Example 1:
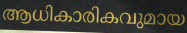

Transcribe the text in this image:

ആധികാരികവുമായ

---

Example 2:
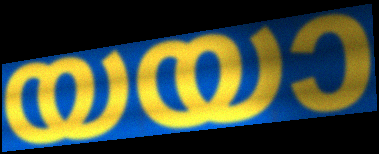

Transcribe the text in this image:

യയാ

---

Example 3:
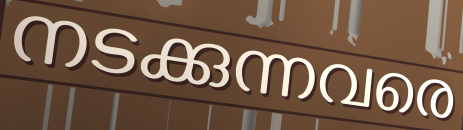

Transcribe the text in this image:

നടക്കുന്നവരെ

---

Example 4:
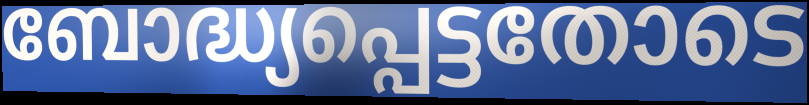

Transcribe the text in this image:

ബോദ്ധ്യപ്പെട്ടതോടെ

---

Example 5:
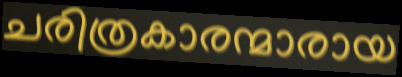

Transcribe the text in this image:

ചരിത്രകാരന്മാരായ